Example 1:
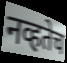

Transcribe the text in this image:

नव्हतेच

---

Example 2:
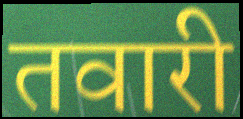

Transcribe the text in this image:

तवारी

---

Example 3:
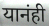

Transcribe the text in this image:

यानंही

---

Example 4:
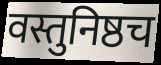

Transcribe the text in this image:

वस्तुनिष्ठच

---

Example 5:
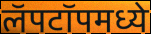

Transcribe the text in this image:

लॅपटॉपमध्ये